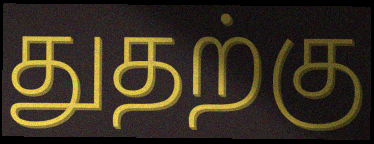
துதற்கு